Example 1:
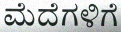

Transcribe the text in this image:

ಮೆದೆಗಳಿಗೆ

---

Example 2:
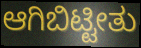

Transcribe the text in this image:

ಆಗಿಬಿಟ್ಟೀತು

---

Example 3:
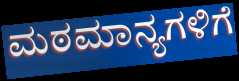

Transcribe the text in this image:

ಮಠಮಾನ್ಯಗಳಿಗೆ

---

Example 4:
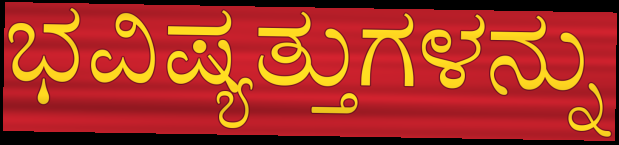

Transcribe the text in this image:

ಭವಿಷ್ಯತ್ತುಗಳನ್ನು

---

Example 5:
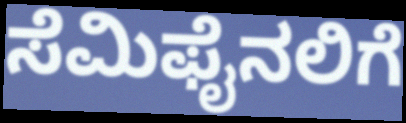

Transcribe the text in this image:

ಸೆಮಿಫೈನಲಿಗೆ